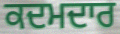
ਕਦਮਦਾਰ